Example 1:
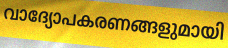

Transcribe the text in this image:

വാദ്യോപകരണങ്ങളുമായി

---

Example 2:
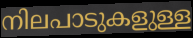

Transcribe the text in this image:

നിലപാടുകളുള്ള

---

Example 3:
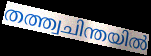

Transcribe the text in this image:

തത്ത്വചിന്തയിൽ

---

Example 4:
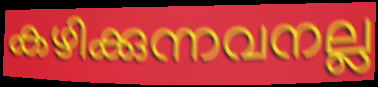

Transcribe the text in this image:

കഴിക്കുന്നവനല്ല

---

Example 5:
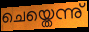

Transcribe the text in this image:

ചെയ്തെന്നു്